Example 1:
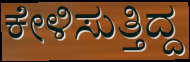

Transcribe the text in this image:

ಕೇಳಿಸುತ್ತಿದ್ದ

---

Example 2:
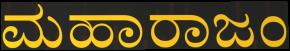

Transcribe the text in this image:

ಮಹಾರಾಜಂ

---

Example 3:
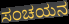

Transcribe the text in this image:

ಸಂಚಯನ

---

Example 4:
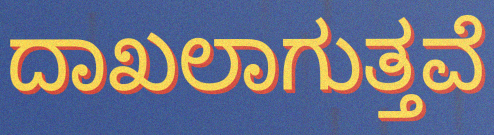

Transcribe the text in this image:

ದಾಖಲಾಗುತ್ತವೆ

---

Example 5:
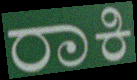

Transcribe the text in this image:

ರಾಕಿ